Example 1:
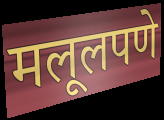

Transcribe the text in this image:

मलूलपणे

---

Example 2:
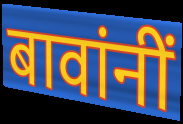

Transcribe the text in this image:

बावांनीं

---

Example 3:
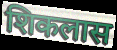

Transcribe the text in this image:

शिकलास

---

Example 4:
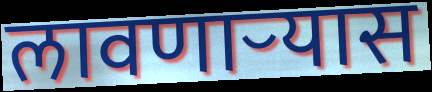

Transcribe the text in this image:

लावणाऱ्यास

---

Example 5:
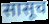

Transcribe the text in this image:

सासूच